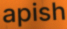
apish